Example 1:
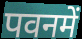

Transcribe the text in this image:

पवनमें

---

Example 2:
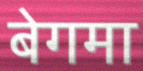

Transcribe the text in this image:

बेगमा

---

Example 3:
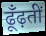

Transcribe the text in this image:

ढूँढ़तीं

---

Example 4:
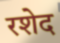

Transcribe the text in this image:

रशेद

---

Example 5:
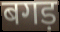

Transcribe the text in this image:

बगड़